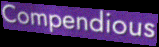
Compendious